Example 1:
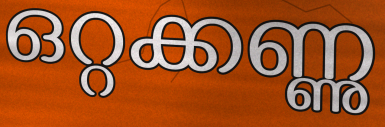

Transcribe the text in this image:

ഒറ്റക്കണ്ണു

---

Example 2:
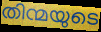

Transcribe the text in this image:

തിന്മയുടെ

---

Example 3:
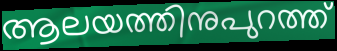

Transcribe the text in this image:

ആലയത്തിനുപുറത്ത്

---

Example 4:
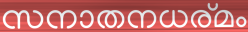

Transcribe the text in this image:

സനാതനധര്മം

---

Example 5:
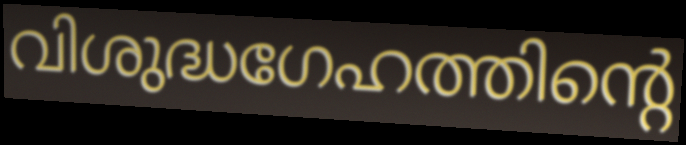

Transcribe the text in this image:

വിശുദ്ധഗേഹത്തിന്റെ